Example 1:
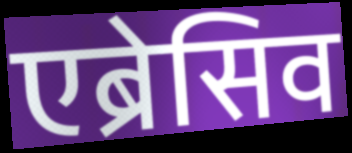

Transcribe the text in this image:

एब्रेसिव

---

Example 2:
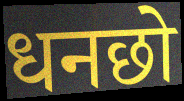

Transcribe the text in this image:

धनछो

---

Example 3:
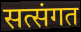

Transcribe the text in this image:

सत्संगत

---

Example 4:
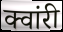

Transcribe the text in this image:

क्वांरी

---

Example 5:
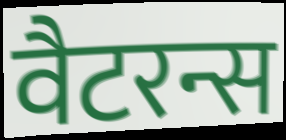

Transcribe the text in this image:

वैटरन्स